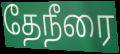
தேநீரை